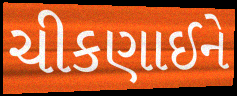
ચીકણાઈને